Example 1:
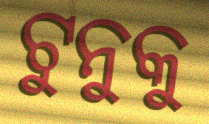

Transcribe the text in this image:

ଟୁନୁକୁ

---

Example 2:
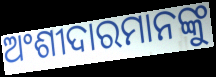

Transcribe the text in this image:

ଅଂଶୀଦାରମାନଙ୍କୁ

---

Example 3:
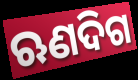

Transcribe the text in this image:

ଋଣଦିଗ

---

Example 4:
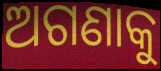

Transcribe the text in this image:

ଅଗଣାକୁ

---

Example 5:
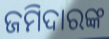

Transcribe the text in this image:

ଜମିଦାରଙ୍କ